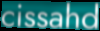
cissahd